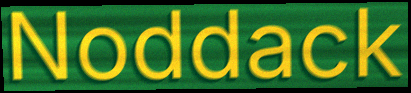
Noddack